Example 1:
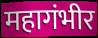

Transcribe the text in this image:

महागंभीर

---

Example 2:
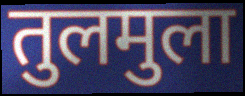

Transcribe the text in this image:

तुलमुला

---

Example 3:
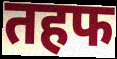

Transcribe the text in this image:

तहफ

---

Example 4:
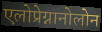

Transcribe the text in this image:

एलोप्रेग्नानोलोन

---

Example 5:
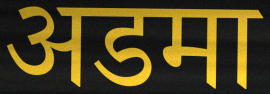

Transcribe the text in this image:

अडमा